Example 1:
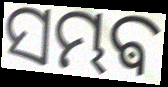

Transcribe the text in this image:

ସମ୍ଭଵ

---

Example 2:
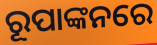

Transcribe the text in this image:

ରୂପାଙ୍କନରେ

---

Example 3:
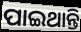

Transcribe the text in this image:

ପାଇଥାନ୍ତି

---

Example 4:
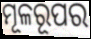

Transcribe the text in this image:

ମୂଳରୂପର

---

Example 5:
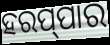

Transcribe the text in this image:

ହରପ୍‌ପାର